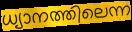
ധ്യാനത്തിലെന്ന